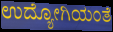
ಉದ್ಯೋಗಿಯಂತೆ